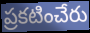
ప్రకటించేరు